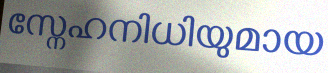
സ്നേഹനിധിയുമായ